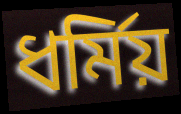
ধর্মিয়